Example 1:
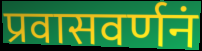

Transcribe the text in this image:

प्रवासवर्णनं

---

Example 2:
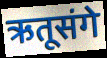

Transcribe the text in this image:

ऋतूसंगे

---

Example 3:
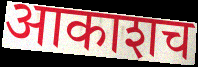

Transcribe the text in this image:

आकाशच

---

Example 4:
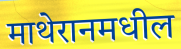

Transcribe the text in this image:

माथेरानमधील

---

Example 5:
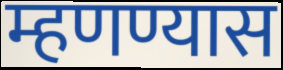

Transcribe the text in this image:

म्हणण्यास